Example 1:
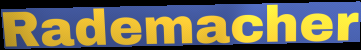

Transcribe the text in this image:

Rademacher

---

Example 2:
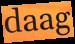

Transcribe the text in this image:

daag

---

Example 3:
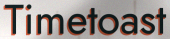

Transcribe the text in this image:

Timetoast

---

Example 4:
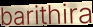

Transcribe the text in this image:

barithira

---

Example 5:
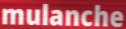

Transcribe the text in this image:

mulanche